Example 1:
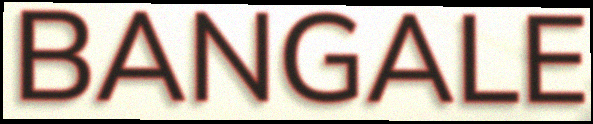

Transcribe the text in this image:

BANGALE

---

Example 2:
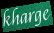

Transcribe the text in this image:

kharge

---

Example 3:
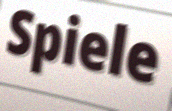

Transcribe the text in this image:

Spiele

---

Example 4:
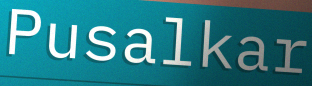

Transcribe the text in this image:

Pusalkar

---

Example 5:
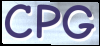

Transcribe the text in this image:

CPG